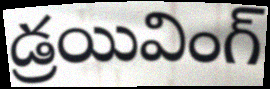
డ్రయివింగ్